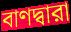
বাণদ্বারা